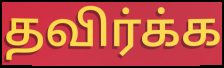
தவிர்க்க